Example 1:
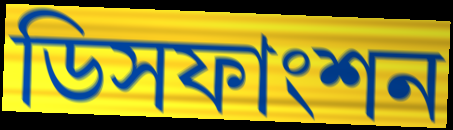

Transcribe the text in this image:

ডিসফাংশন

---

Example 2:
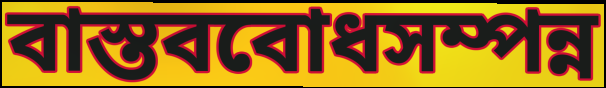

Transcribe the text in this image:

বাস্তববোধসম্পন্ন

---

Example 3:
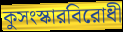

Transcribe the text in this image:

কুসংস্কারবিরোধী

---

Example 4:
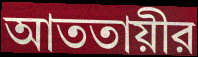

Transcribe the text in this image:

আততায়ীর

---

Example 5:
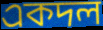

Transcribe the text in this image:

একদল